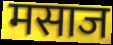
मसाज